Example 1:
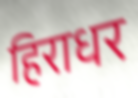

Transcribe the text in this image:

हिराधर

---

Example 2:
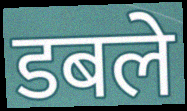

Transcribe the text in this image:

डबले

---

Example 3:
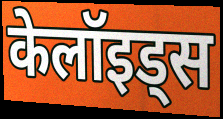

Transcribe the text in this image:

केलॉइड्स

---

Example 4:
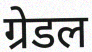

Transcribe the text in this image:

ग्रेडल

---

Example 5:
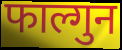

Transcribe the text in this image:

फाल्गुन